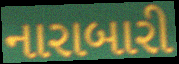
નારાબારી